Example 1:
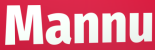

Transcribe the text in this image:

Mannu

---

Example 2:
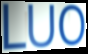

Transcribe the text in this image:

LUO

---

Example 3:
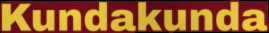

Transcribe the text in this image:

Kundakunda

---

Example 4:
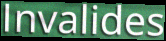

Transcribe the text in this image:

Invalides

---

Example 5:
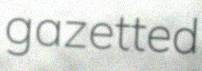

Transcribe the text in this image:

gazetted